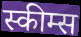
स्कीम्स